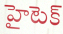
హైటెక్